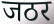
जठर